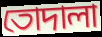
তোদালা